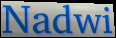
Nadwi